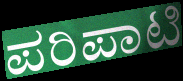
ಪರಿಪಾಟಿ